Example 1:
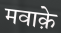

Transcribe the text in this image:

मवाक़े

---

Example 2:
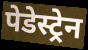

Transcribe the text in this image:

पेडेस्ट्रेन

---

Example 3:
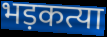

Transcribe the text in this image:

भड़कत्या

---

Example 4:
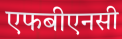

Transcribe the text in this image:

एफबीएनसी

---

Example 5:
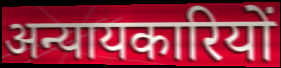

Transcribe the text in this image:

अन्यायकारियों